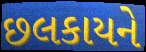
છલકાયને